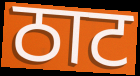
ठाट